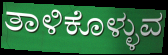
ತಾಳಿಕೊಳ್ಳುವ